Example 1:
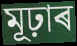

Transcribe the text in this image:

মূঢ়াৰ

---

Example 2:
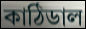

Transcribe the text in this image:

কাঠিডাল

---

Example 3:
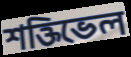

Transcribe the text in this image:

শক্তিভেল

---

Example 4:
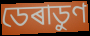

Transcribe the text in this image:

ডেৰাডুণ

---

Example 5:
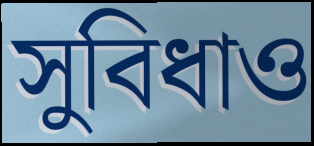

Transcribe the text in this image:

সুবিধাও